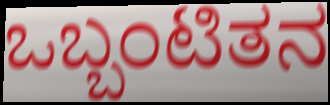
ಒಬ್ಬಂಟಿತನ